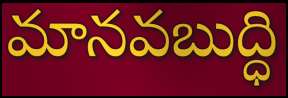
మానవబుద్ధి